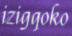
izigqoko